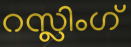
റസ്ലിംഗ്